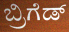
ಬ್ರಿಗೆಡ್